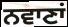
ਨਵਾਣਾਂ